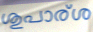
ശുപാര്ശ